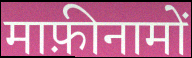
माफ़ीनामों